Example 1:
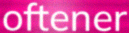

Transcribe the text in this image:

oftener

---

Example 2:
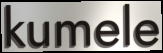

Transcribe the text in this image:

kumele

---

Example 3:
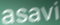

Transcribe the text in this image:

asavi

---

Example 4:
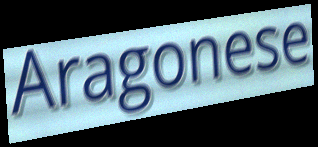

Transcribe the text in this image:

Aragonese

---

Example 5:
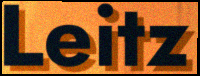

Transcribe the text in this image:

Leitz